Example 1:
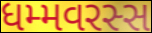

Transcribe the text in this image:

ધમ્મવરસ્સ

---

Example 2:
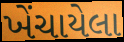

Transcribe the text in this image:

ખેંચાયેલા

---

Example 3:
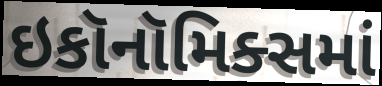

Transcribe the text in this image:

ઇકૉનૉમિક્સમાં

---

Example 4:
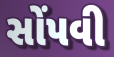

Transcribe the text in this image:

સોંપવી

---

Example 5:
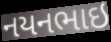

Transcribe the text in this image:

નયનભાઇ